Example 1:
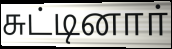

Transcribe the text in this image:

சுட்டினார்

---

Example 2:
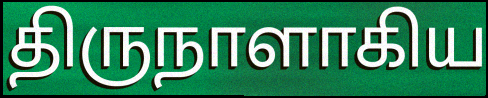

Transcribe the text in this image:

திருநாளாகிய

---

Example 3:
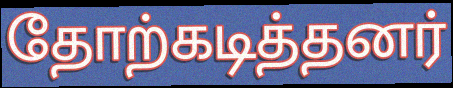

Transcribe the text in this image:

தோற்கடித்தனர்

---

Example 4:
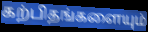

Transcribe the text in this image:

கற்பிதங்களையும்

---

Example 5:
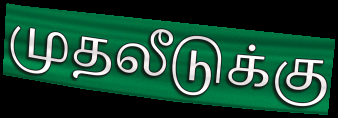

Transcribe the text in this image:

முதலீடுக்கு